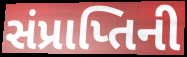
સંપ્રાપ્તિની